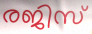
രജിസ്